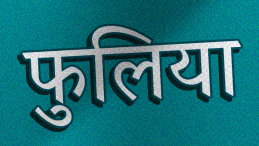
फुलिया